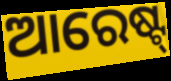
ଆରେଷ୍ଟ୍